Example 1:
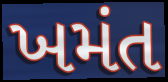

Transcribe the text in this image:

ખમંત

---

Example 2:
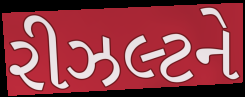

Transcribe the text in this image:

રીઝલ્ટને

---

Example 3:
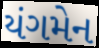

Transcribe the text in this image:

યંગમેન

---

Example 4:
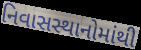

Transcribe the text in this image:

નિવાસસ્થાનોમાંથી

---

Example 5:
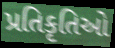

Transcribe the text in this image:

પ્રતિકૃતિઓ